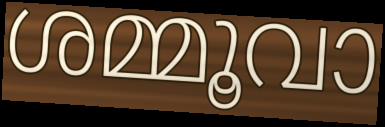
ശമ്മൂവാ